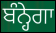
ਬੰਨ੍ਹੇਗਾ